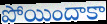
పోయిందాకా